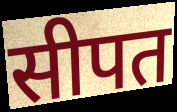
सीपत